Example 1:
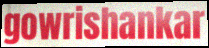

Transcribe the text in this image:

gowrishankar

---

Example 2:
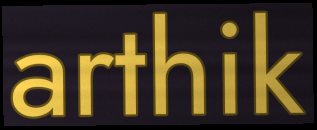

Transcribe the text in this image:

arthik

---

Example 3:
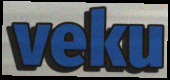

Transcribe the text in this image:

veku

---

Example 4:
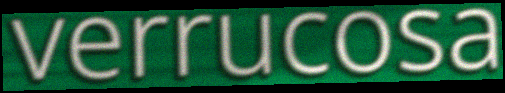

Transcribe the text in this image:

verrucosa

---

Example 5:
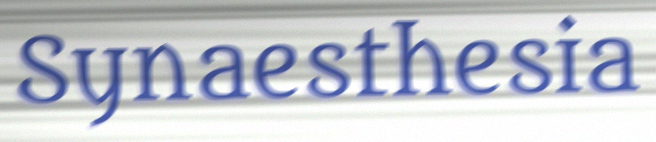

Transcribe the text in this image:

Synaesthesia